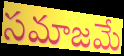
సమాజమే